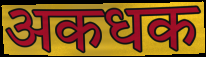
अकधक